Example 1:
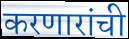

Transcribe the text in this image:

करणारांची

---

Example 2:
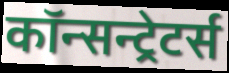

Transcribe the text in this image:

कॉन्सन्ट्रेटर्स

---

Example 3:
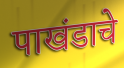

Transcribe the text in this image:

पाखंडाचे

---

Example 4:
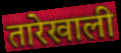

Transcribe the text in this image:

तारेखाली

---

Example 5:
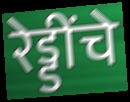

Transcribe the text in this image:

रेड्डींचे